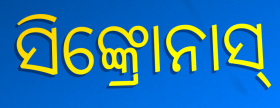
ସିଙ୍କ୍ରୋନାସ୍